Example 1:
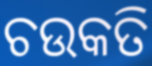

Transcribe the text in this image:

ଚଉକତି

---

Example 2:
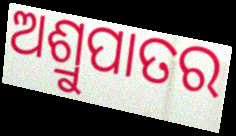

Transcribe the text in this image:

ଅଶ୍ରୁପାତର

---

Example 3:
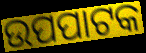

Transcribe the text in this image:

ଉପପାଟକ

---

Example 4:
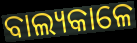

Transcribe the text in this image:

ବାଲ୍ୟକାଳେ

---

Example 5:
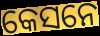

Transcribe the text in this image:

କେସନେ